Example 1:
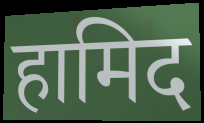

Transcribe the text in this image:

हामिद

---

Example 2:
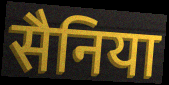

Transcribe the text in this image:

सैनिया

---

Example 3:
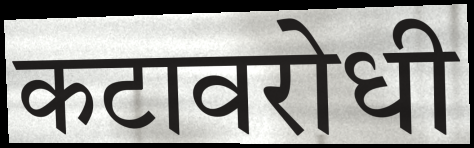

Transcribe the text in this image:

कटावरोधी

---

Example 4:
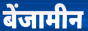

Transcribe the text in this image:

बेंजामीन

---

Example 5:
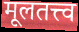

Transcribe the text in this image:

मूलतत्त्व